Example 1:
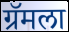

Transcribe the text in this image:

ग्रॅमला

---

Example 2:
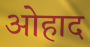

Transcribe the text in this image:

ओहाद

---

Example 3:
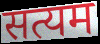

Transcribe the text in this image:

सत्यम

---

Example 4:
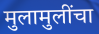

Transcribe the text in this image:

मुलामुलींचा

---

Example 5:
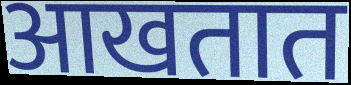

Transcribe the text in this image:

आखतात